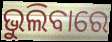
ଭୁଲିବାରେ